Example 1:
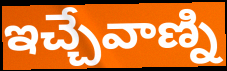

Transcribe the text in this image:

ఇచ్చేవాణ్ని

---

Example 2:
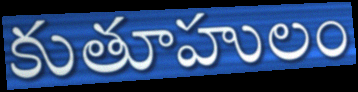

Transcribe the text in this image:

కుతూహులం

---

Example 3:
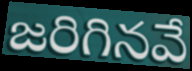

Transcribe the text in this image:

జరిగినవే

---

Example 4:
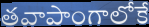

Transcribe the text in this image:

తవాపాంగాలోకే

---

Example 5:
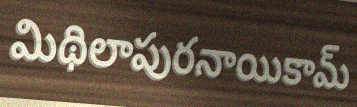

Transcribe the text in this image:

మిథిలాపురనాయికామ్